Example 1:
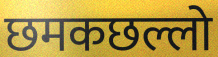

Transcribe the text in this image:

छमकछल्लो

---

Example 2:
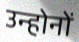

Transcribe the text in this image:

उन्होनों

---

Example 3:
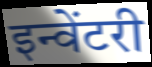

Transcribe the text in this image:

इन्वेंटरी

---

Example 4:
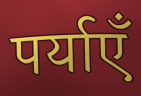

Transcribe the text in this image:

पर्याएँ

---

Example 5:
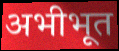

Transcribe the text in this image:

अभीभूत